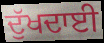
ਦੁੱਖਦਾਈ